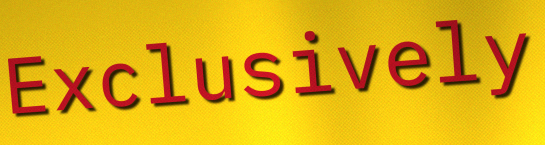
Exclusively